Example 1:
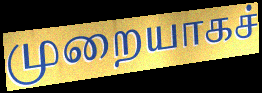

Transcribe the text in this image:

முறையாகச்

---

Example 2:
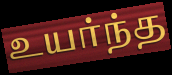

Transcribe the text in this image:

உயர்ந்த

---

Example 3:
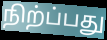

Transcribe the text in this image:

நிற்ப்பது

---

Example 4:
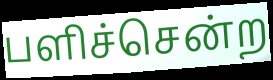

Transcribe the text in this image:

பளிச்சென்ற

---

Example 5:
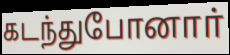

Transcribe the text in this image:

கடந்துபோனார்